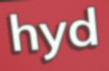
hyd